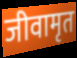
जीवामृत